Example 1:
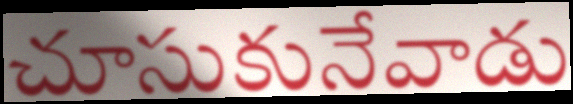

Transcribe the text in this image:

చూసుకునేవాడు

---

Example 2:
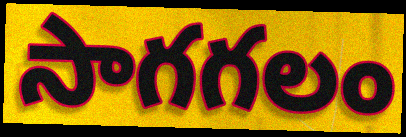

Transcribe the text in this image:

సాగగలం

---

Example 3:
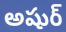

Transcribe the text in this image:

అషుర్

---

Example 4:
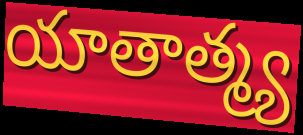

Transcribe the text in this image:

యాతాత్మ్య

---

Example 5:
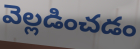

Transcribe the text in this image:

వెల్లడించడం